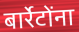
बार्रेटोंना